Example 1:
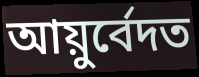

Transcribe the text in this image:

আয়ুৰ্বেদত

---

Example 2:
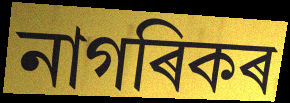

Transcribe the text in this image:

নাগৰিকৰ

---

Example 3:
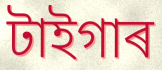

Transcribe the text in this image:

টাইগাৰ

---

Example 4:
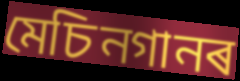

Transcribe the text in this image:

মেচিনগানৰ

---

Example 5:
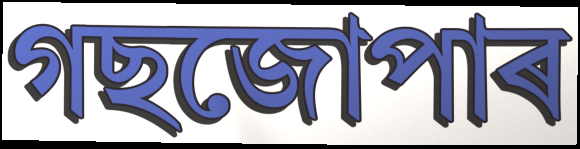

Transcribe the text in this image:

গছজোপাৰ